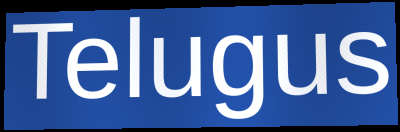
Telugus